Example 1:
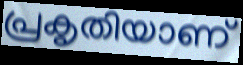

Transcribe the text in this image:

പ്രകൃതിയാണ്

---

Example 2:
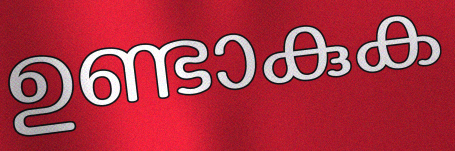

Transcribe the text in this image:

ഉണ്ടാകുക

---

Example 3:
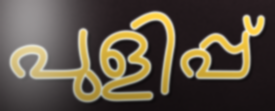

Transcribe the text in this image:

പുളിപ്പ്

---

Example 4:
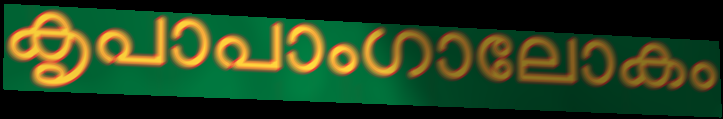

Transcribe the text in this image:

കൃപാപാംഗാലോകം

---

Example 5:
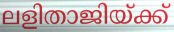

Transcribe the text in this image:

ലളിതാജിയ്ക്ക്